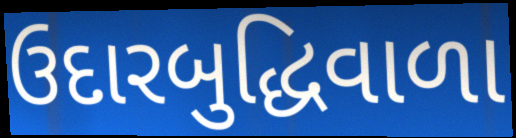
ઉદારબુદ્ધિવાળા